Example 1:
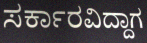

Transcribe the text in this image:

ಸರ್ಕಾರವಿದ್ದಾಗ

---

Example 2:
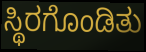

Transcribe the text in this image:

ಸ್ಥಿರಗೊಂಡಿತು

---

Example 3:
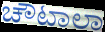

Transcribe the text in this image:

ಚೌಟಾಲಾ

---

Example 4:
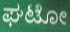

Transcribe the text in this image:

ಘಟೋ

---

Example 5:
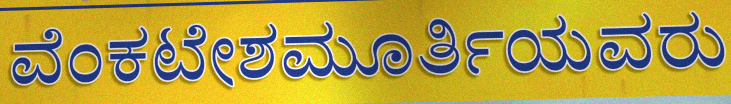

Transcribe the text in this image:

ವೆಂಕಟೇಶಮೂರ್ತಿಯವರು